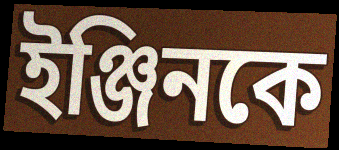
ইঞ্জিনকে